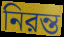
নিরন্ত